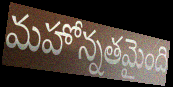
మహోన్నతమైంది